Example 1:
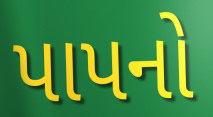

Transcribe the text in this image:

પાપનો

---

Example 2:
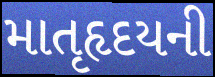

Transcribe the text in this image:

માતૃહૃદયની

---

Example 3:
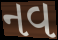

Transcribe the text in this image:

નવ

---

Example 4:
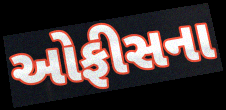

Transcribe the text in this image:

ઓફીસના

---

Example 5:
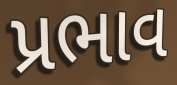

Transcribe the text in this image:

પ્રભાવ